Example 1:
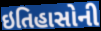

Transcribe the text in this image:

ઇતિહાસોની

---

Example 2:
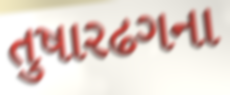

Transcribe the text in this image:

તુષારઢગના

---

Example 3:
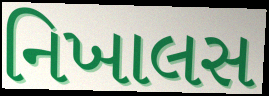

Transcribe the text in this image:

નિખાલસ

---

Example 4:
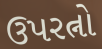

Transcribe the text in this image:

ઉપરત્નો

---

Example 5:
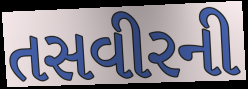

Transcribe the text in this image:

તસવીરની